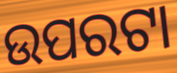
ଉପରଟା